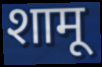
शामू